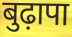
बुढ़ापा